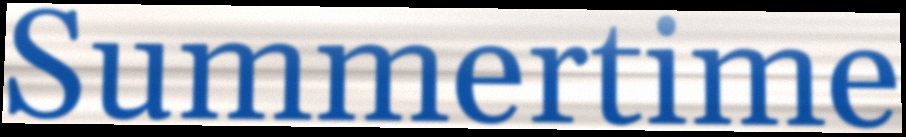
Summertime